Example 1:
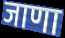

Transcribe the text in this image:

जाणा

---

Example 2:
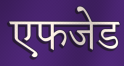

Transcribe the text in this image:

एफजेड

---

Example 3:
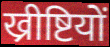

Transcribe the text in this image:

ख्रीष्टियों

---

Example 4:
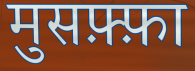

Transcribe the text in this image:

मुसफ़्फ़ा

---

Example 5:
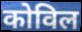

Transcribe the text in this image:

कोविल